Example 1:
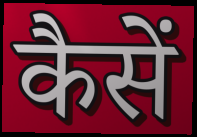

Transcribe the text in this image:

कैसें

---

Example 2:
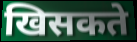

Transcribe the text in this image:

खिसकते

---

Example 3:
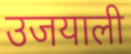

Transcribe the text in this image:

उजयाली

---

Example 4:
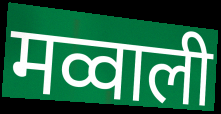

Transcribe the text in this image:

मव्वाली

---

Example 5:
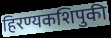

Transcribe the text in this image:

हिरण्यकशिपुकी